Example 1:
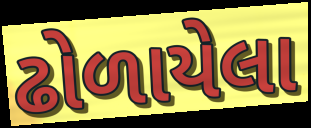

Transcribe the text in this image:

ઢોળાયેલા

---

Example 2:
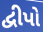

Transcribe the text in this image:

દ્વીપો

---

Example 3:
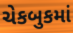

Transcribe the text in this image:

ચેકબુકમાં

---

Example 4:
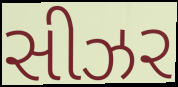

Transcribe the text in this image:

સીઝર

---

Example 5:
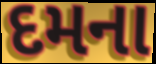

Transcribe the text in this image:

દમના